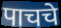
पाचचे